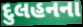
દુલહનના